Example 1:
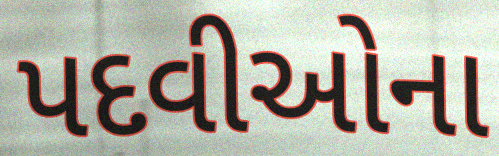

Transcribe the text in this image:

પદવીઓના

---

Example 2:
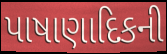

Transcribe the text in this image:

પાષાણાદિકની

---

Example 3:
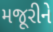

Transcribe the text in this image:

મજૂરીને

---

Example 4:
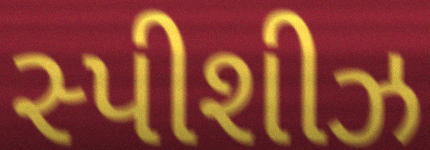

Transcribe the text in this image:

સ્પીશીઝ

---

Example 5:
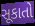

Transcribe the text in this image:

સૂકાતો